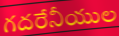
గదరేనీయుల